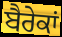
ਬੈਰੇਕਾਂ